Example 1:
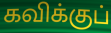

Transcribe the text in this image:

கவிக்குப்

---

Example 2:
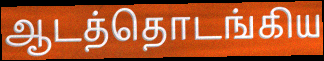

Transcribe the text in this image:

ஆடத்தொடங்கிய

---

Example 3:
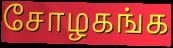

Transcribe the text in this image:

சோழகங்க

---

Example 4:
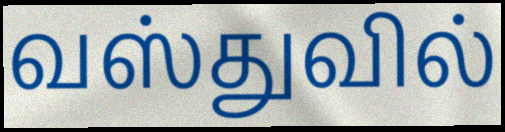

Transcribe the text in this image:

வஸ்துவில்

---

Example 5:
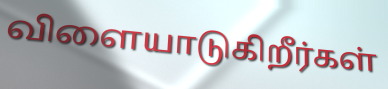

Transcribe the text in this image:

விளையாடுகிறீர்கள்